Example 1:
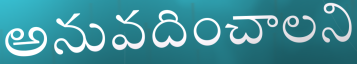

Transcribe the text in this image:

అనువదించాలని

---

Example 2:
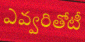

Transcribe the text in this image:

ఎవ్వరితోటీ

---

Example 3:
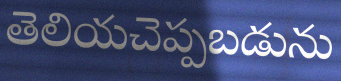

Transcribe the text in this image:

తెలియచెప్పబడును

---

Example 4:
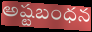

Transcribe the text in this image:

అష్టబంధన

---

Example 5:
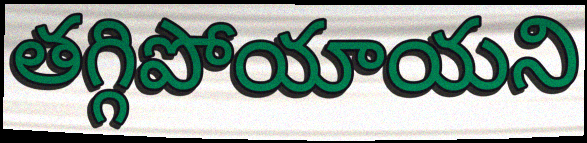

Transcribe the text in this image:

తగ్గిపోయాయని